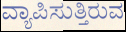
ವ್ಯಾಪಿಸುತ್ತಿರುವ